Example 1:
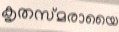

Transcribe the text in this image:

കൃതസ്മരായൈ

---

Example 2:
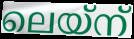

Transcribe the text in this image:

ലെയ്ന്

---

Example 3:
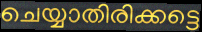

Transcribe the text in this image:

ചെയ്യാതിരിക്കട്ടെ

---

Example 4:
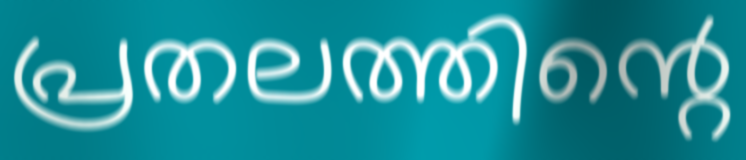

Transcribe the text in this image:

പ്രതലത്തിന്റെ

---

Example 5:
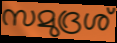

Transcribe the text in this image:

സമുദ്രശ്